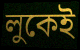
লুকেই